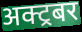
अक्ट्रबर